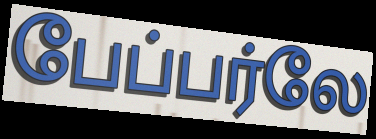
பேப்பர்லே